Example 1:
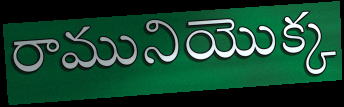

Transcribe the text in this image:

రామునియొక్క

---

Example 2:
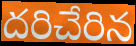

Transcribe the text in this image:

దరిచేరిన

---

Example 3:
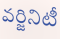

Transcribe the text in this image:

వర్జినిటీ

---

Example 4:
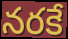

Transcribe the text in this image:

నరకే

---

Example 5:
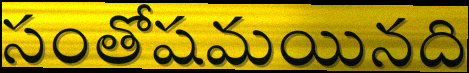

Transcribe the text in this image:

సంతోషమయినది